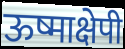
ऊष्माक्षेपी